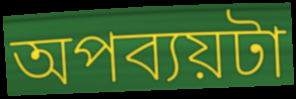
অপব্যয়টা